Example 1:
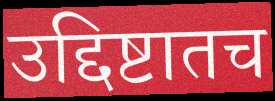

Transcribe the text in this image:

उद्दिष्टातच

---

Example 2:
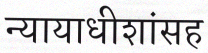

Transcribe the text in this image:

न्यायाधीशांसह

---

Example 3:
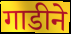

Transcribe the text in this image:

गाडीने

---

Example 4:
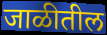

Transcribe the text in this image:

जाळीतील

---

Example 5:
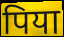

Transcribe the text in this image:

पिया